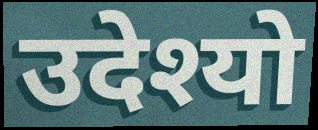
उदेश्यो